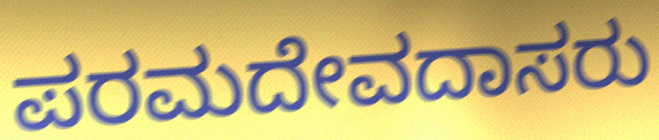
ಪರಮದೇವದಾಸರು